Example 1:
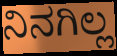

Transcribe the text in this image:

ನಿನಗಿಲ್ಲ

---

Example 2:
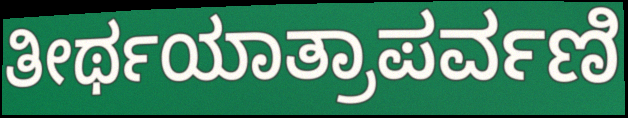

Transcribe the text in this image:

ತೀರ್ಥಯಾತ್ರಾಪರ್ವಣಿ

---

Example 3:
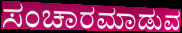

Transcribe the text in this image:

ಸಂಚಾರಮಾಡುವ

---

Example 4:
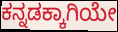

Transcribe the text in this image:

ಕನ್ನಡಕ್ಕಾಗಿಯೇ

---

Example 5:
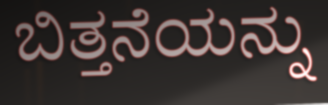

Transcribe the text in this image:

ಬಿತ್ತನೆಯನ್ನು